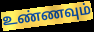
உண்ணவும்